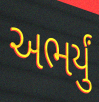
અભર્યું